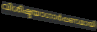
വിശിഷ്ടയാഗാർപ്പണമായി